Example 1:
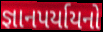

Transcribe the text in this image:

જ્ઞાનપર્યાયનો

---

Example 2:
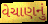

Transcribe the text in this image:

વેચાણનું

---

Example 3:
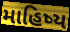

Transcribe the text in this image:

માહિષ્ય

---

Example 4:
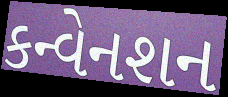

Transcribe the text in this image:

કન્વેનશન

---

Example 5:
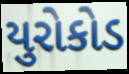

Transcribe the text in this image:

યુરોકોડ